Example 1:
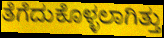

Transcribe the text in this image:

ತೆಗೆದುಕೊಳ್ಳಲಾಗಿತ್ತು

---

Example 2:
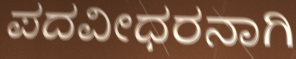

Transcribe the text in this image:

ಪದವೀಧರನಾಗಿ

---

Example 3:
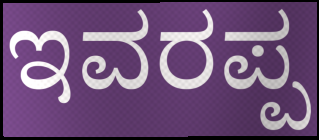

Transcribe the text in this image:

ಇವರಪ್ಪ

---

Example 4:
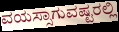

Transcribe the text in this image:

ವಯಸ್ಸಾಗುವಷ್ಟರಲ್ಲಿ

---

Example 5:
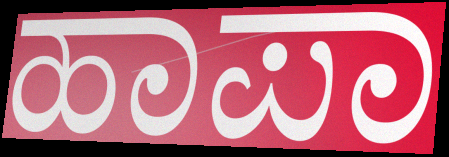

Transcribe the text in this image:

ಹಾಪಾ